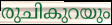
രുചികുറയും